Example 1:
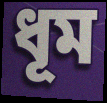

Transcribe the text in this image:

ধূম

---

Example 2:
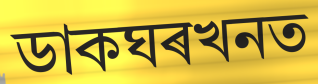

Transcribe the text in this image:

ডাকঘৰখনত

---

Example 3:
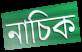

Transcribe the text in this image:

নাচিক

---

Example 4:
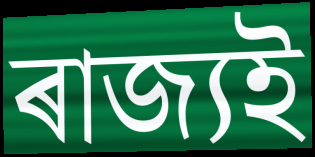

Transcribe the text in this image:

ৰাজ্যই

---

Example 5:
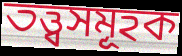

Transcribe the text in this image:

তত্ত্বসমূহক